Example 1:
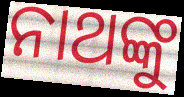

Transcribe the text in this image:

ନାଥଙ୍କୁ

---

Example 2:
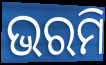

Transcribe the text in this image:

ଭରମି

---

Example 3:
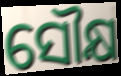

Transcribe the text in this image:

ସୌକ୍ଷ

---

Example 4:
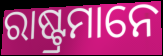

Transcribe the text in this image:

ରାଷ୍ଟ୍ରମାନେ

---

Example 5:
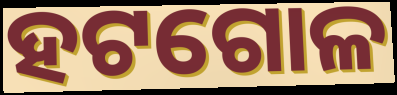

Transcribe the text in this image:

ହଟଗୋଳ